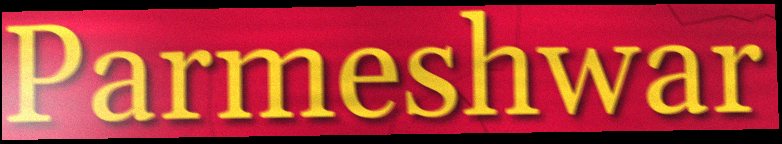
Parmeshwar